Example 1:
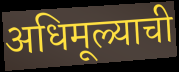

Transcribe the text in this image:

अधिमूल्याची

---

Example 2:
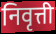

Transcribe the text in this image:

निवृत्ती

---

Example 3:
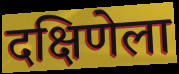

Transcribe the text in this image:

दक्षिणेला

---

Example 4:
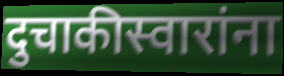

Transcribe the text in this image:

दुचाकीस्वारांना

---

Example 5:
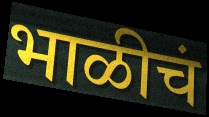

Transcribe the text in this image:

भाळीचं